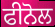
ਫੀਨੋਲ